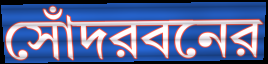
সোঁদরবনের